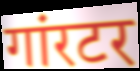
गांरटर